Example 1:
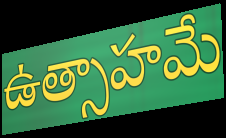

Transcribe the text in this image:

ఉత్సాహమే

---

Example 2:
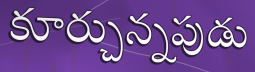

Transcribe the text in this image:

కూర్చున్నపుడు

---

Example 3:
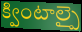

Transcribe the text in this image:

క్వింటాల్పై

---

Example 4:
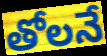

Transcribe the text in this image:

తోలనే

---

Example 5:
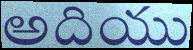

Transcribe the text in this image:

అదియు